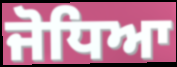
ਜੋਧਿਆ